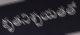
కృతనిశ్చయతతో